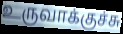
உருவாக்குச்சு